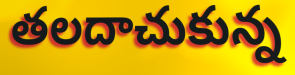
తలదాచుకున్న